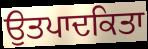
ਉਤਪਾਦਕਿਤਾ